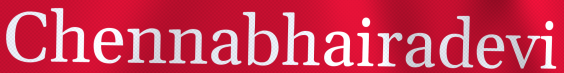
Chennabhairadevi